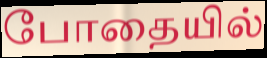
போதையில்